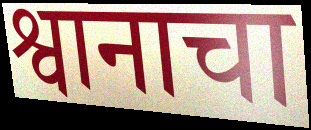
श्वानाचा